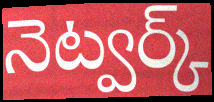
నెట్వర్క్